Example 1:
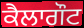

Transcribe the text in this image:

ਕੈਲਾਗੌਟ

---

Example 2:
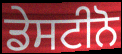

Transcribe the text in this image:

ਡੇਸਟੀਨੋ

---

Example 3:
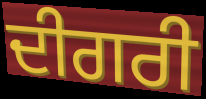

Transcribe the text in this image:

ਦੀਗਰੀ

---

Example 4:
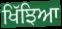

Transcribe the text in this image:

ਖਿੱਝਿਆ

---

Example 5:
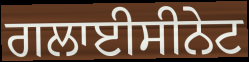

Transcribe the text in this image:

ਗਲਾਈਸੀਨੇਟ